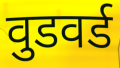
वुडवर्ड